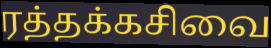
ரத்தக்கசிவை